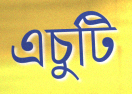
এচুটি